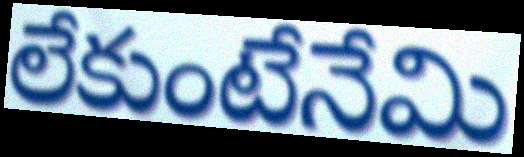
లేకుంటేనేమి